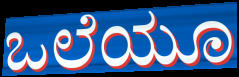
ಒಲೆಯೂ